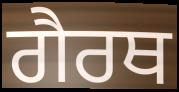
ਗੈਰਥ